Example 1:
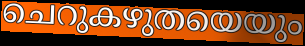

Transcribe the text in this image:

ചെറുകഴുതയെയും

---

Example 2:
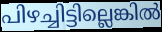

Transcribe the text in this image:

പിഴച്ചിട്ടില്ലെങ്കിൽ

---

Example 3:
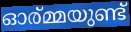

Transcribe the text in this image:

ഓര്മ്മയുണ്ട്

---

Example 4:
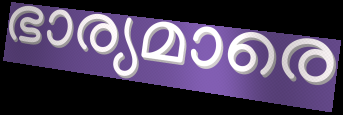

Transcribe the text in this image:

ഭാര്യമാരെ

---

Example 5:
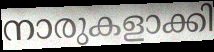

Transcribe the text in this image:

നാരുകളാക്കി